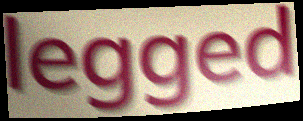
legged